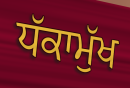
ਧੱਕਾਮੁੱਖ